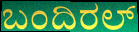
ಬಂದಿರಲ್